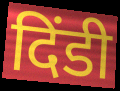
दिंडी